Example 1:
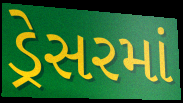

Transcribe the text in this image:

ડ્રેસરમાં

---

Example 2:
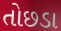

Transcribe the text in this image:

તોછડા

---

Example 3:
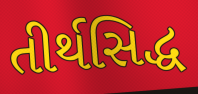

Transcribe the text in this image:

તીર્થસિદ્ધ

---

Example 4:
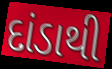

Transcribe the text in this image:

દાંડાથી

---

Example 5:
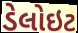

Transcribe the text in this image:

ડેલોઇટ